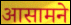
आसामने